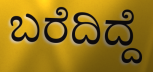
ಬರೆದಿದ್ದೆ